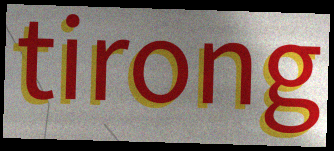
tirong